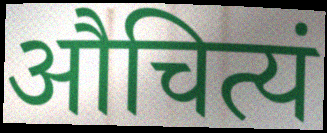
औचित्यं